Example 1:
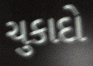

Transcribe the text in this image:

ચુકાદો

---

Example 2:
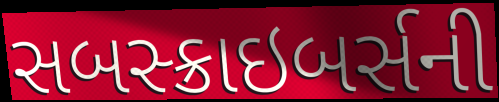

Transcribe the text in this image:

સબસ્ક્રાઇબર્સની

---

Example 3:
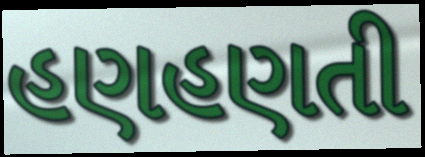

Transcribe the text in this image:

હણહણતી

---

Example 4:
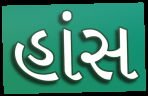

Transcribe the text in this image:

હાંસ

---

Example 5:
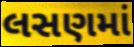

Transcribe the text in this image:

લસણમાં